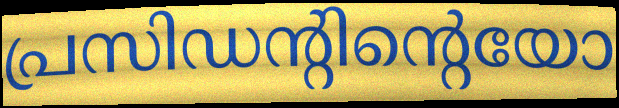
പ്രസിഡന്റിന്റെയോ